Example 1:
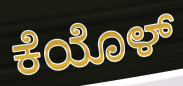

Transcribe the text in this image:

ಕೆಯೊಳ್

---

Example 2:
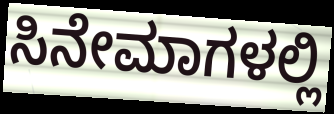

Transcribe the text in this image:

ಸಿನೇಮಾಗಳಲ್ಲಿ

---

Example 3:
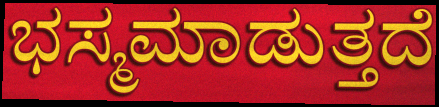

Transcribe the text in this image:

ಭಸ್ಮಮಾಡುತ್ತದೆ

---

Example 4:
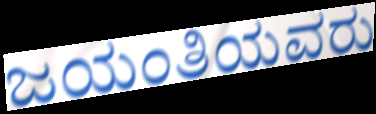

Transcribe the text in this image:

ಜಯಂತಿಯವರು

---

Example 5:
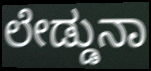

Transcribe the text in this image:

ಲೇಡ್ಡುನಾ